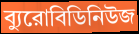
ব্যুরোবিডিনিউজ